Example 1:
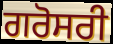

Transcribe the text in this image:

ਗਰੋਸਰੀ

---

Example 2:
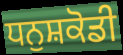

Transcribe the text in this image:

ਧਨੁਸ਼ਕੋਡੀ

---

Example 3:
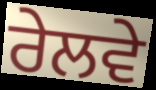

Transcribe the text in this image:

ਰੇਲਵੇ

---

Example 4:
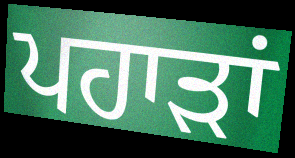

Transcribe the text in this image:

ਪਹਾੜਾਂ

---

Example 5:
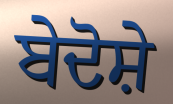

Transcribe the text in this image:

ਬੇਦੋਸ਼ੇ